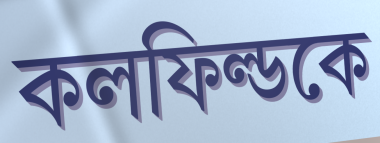
কলফিল্ডকে